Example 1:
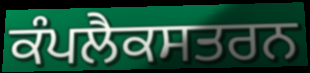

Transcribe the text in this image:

ਕੰਪਲੈਕਸਤਰਨ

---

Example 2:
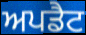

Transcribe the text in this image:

ਅਪਡੈਟ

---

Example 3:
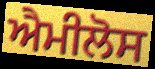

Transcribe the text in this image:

ਐਮੀਲੋਸ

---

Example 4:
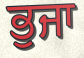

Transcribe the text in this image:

ਭੁਜਾ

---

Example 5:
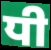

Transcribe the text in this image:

ਧੀ